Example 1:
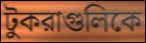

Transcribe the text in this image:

টুকরাগুলিকে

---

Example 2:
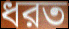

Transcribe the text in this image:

ধরত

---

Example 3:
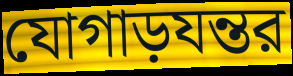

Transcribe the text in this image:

যোগাড়যন্তর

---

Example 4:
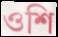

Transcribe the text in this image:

ওশি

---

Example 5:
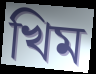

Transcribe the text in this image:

খিম